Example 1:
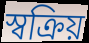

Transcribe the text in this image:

স্বক্রিয়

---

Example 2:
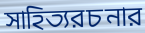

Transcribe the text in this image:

সাহিত্যরচনার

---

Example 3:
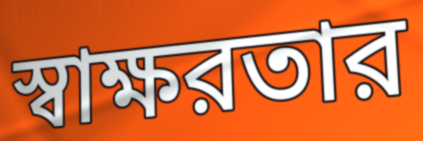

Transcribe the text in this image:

স্বাক্ষরতার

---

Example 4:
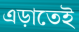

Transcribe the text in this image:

এড়াতেই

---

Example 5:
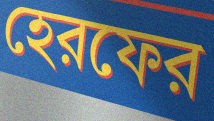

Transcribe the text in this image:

হেরফের